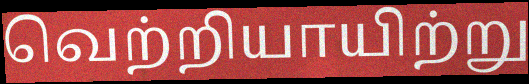
வெற்றியாயிற்று